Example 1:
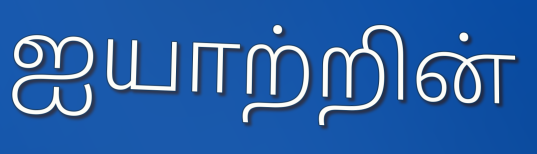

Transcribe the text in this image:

ஐயாற்றின்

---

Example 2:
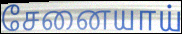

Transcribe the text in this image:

சேனையாய்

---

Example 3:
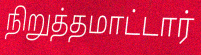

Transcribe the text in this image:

நிறுத்தமாட்டார்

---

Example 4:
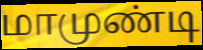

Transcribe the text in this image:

மாமுண்டி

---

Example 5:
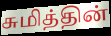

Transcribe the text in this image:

சுமித்தின்